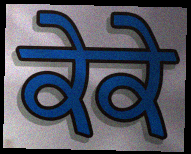
ਕੇਕੇ